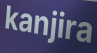
kanjira